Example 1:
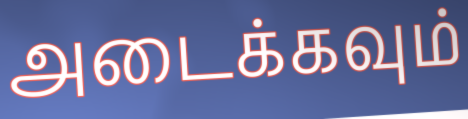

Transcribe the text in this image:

அடைக்கவும்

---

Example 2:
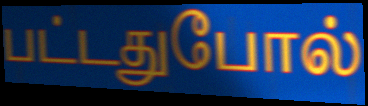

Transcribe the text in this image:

பட்டதுபோல்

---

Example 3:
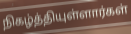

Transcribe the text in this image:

நிகழ்த்தியுள்ளார்கள்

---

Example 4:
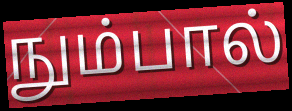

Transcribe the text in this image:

நும்பால்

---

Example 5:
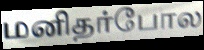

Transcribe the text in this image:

மனிதர்போல